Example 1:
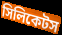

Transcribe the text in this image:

সিলিকেটস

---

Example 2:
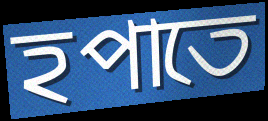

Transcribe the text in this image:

হপাতে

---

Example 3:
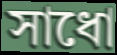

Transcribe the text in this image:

সাধো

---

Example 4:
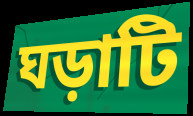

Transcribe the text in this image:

ঘড়াটি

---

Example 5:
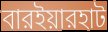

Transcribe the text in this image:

বারইয়ারহাট